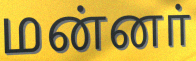
மன்னர்